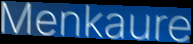
Menkaure